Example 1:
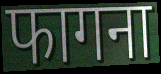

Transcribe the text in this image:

फागना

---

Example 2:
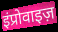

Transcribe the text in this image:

इंप्रोवाइज़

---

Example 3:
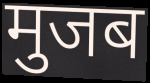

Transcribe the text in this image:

मुजब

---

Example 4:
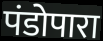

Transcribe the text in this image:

पंडोपारा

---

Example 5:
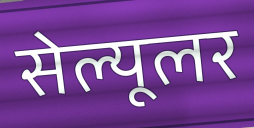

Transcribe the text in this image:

सेल्यूलर